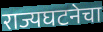
राज्यघटनेचा